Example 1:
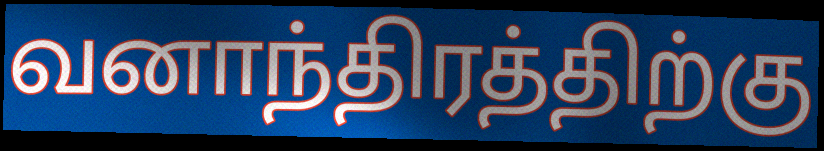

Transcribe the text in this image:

வனாந்திரத்திற்கு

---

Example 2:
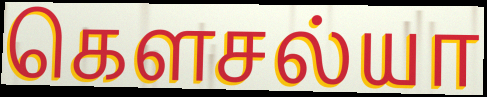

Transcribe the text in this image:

கௌசல்யா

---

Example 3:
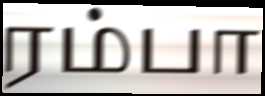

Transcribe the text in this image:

ரம்பா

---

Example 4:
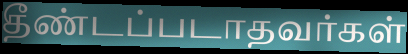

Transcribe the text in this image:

தீண்டப்படாதவர்கள்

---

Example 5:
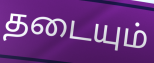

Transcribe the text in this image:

தடையும்